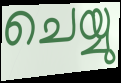
ചെയ്യു